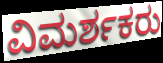
ವಿಮರ್ಶಕರು